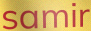
samir